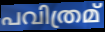
പവിത്രമ്